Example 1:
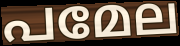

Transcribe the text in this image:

പമേല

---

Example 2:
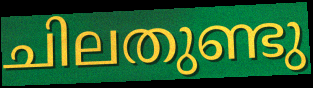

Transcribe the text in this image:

ചിലതുണ്ടു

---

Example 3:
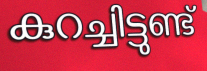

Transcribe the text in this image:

കുറച്ചിട്ടുണ്ട്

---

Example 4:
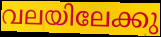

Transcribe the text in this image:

വലയിലേക്കു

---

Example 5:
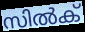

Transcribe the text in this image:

സിൽക്